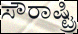
ಸೌರಾಷ್ಟ್ರಿ